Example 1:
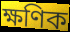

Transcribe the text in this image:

ক্ষণিক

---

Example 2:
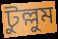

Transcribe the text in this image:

টুল্লুম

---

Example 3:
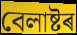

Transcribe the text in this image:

বেলাষ্টৰ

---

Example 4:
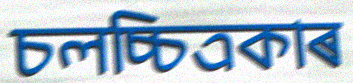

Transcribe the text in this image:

চলচ্চিত্ৰকাৰ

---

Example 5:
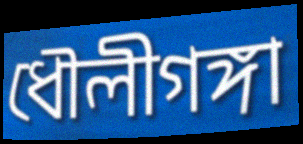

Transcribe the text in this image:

ধৌলীগঙ্গা